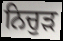
ਨਿਚੁੜ